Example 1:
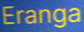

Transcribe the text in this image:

Eranga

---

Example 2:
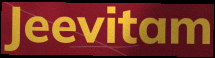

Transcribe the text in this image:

Jeevitam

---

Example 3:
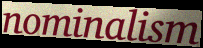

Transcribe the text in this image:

nominalism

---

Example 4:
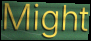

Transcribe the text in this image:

Might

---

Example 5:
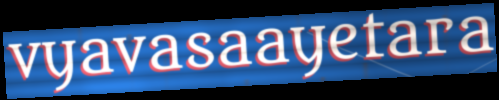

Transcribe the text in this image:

vyavasaayetara